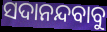
ସଦାନନ୍ଦବାବୁ